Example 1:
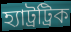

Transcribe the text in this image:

হ্যাট্রট্রিক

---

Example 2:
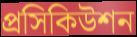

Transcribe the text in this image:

প্রসিকিউশন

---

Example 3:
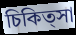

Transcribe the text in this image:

চিকিত্সা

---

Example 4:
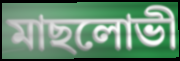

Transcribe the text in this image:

মাছলোভী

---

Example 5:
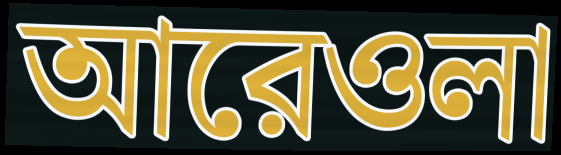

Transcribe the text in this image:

আরেওলা